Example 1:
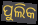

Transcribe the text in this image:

ପୁଲିକ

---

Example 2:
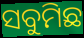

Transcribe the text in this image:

ସବୁମିଛ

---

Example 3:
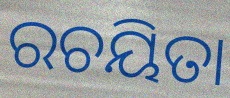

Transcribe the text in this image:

ରଚୟିତା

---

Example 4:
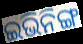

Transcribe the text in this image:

ଇଭିନିଙ୍ଗ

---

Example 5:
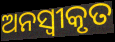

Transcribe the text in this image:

ଅନସ୍ବୀକୃତ